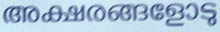
അക്ഷരങ്ങളോടു